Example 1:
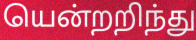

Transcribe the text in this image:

யென்றறிந்து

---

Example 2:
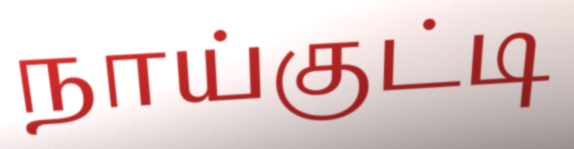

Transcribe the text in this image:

நாய்குட்டி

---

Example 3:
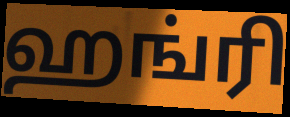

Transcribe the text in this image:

ஹங்ரி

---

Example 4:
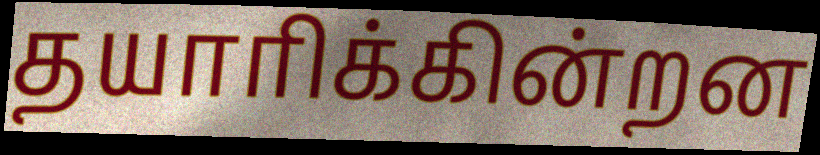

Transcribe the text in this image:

தயாரிக்கின்றன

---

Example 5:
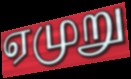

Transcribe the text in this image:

ஏமுறு